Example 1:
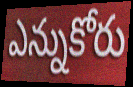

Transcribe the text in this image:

ఎన్నుకోరు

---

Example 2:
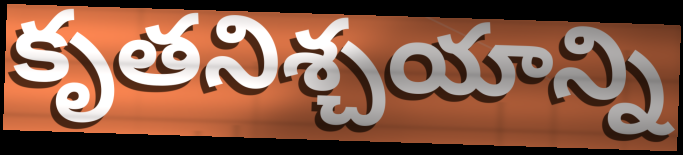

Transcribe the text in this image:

కృతనిశ్చయాన్ని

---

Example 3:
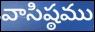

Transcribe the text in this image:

వాసిష్ఠము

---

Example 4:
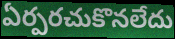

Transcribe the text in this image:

ఏర్పరచుకొనలేదు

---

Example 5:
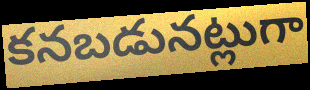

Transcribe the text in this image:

కనబడునట్లుగా